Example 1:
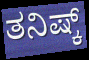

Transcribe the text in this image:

ತನಿಷ್ಕ್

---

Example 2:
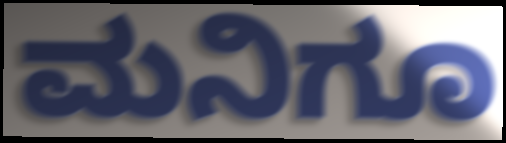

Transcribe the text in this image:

ಮನಿಗೂ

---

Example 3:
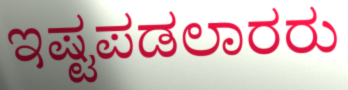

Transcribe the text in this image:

ಇಷ್ಟಪಡಲಾರರು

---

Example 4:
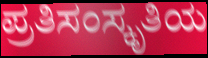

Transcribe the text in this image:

ಪ್ರತಿಸಂಸ್ಕೃತಿಯ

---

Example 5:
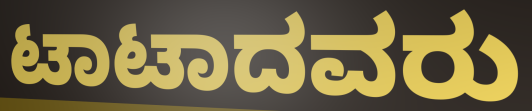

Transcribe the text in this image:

ಟಾಟಾದವರು